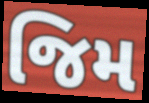
જિમ